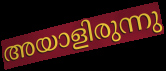
അയാളിരുന്നു